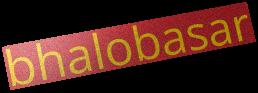
bhalobasar